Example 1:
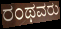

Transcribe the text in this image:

ರಂಥವರು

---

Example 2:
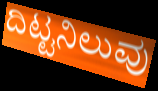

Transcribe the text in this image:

ದಿಟ್ಟನಿಲುವು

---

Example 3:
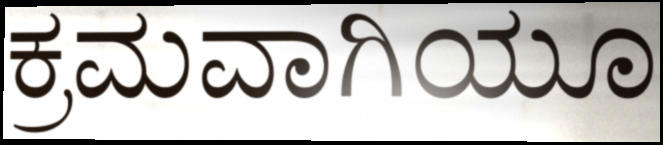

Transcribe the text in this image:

ಕ್ರಮವಾಗಿಯೂ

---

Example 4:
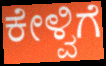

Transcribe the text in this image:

ಕೇಳ್ವಿಗೆ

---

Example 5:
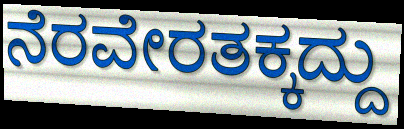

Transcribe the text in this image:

ನೆರವೇರತಕ್ಕದ್ದು